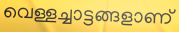
വെള്ളച്ചാട്ടങ്ങളാണ്